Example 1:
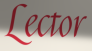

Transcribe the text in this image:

Lector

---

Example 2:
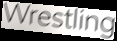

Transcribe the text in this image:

Wrestling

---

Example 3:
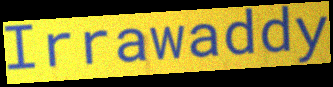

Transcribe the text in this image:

Irrawaddy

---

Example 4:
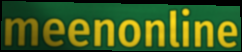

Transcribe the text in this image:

meenonline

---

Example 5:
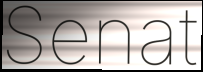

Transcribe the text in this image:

Senat